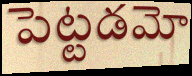
పెట్టడమో